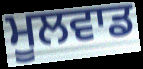
ਮੂਲਵਾਡ